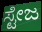
ಸ್ಟೇಜ